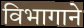
विभागाने